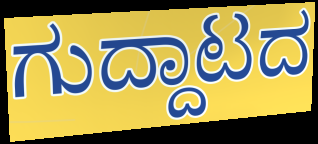
ಗುದ್ದಾಟದ